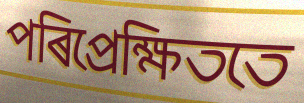
পৰিপ্ৰেক্ষিততে